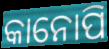
କାନୋପି